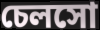
চেলসো